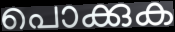
പൊക്കുക